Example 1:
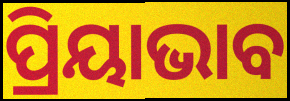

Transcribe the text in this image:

ପ୍ରିୟାଭାବ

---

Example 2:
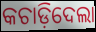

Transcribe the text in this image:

କଚାଡ଼ିଦେଲା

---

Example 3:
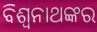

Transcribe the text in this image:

ବିଶ୍ୱନାଥଙ୍କର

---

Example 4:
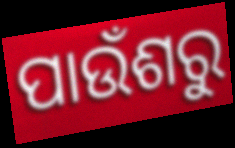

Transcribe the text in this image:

ପାଉଁଶରୁ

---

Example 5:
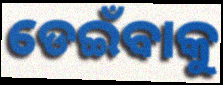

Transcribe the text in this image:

ଡେଇଁବାକୁ